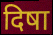
दिषा